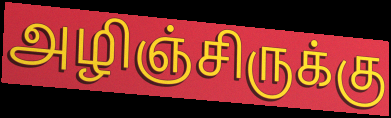
அழிஞ்சிருக்கு